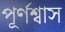
পূর্ণশ্বাস